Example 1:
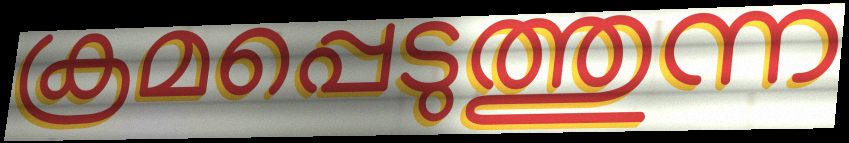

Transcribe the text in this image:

ക്രമപ്പെടുത്തുന്ന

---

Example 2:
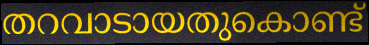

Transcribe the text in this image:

തറവാടായതുകൊണ്ട്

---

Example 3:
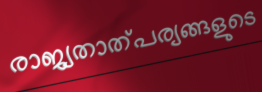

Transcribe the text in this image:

രാജ്യതാത്പര്യങ്ങളുടെ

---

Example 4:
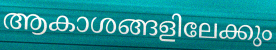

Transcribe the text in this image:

ആകാശങ്ങളിലേക്കും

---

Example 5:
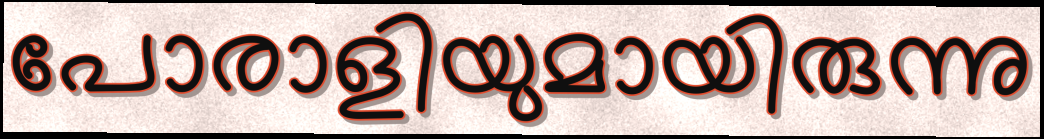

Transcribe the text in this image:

പോരാളിയുമായിരുന്നു